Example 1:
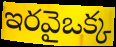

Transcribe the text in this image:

ఇరవైఒక్క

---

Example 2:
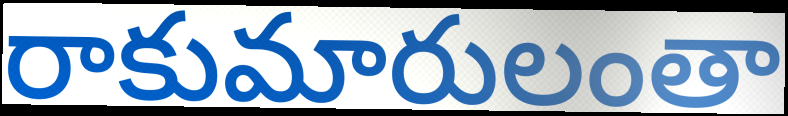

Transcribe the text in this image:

రాకుమారులంతా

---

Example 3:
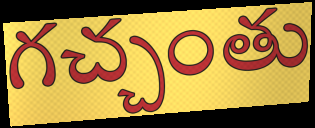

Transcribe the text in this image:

గచ్చంతు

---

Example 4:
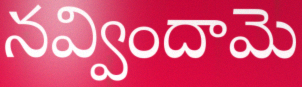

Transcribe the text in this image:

నవ్విందామె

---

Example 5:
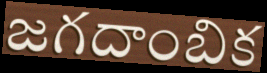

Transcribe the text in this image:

జగదాంబిక